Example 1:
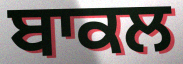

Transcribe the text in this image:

ਬਾਕਲ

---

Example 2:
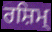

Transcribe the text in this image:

ਰਸ਼ਿਮ੍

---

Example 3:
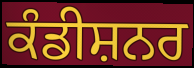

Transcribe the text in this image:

ਕੰਡੀਸ਼ਨਰ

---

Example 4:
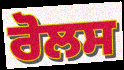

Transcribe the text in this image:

ਰੋਲਸ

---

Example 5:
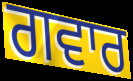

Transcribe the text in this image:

ਗਵਾਰ